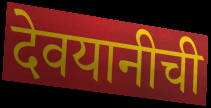
देवयानीची